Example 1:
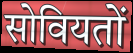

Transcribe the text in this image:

सोवियतों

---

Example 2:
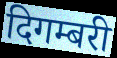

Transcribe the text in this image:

दिगम्बरी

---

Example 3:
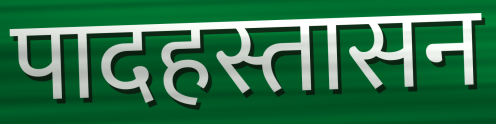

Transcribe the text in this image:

पादहस्तासन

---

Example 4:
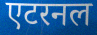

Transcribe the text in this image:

एटरनल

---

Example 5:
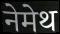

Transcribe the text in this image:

नेमेथ